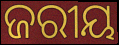
ଜରୀୟ